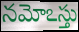
నమోఽస్తు